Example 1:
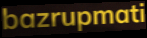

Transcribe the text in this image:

bazrupmati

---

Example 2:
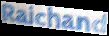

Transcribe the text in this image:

Raichand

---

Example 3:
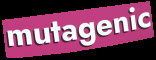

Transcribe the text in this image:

mutagenic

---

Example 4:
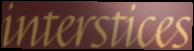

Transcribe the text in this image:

interstices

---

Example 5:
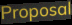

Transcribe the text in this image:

Proposal